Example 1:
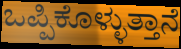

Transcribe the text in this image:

ಒಪ್ಪಿಕೊಳ್ಳುತ್ತಾನೆ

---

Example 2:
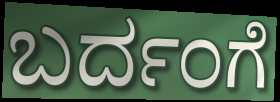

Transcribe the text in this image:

ಬರ್ದಂಗೆ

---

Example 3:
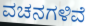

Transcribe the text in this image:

ವಚನಗಳಿವೆ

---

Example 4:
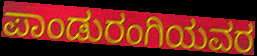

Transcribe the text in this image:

ಪಾಂಡುರಂಗಿಯವರ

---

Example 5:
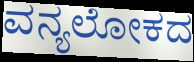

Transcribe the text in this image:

ವನ್ಯಲೋಕದ